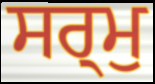
ਸਰ੍ਮੁ